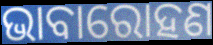
ଭାବାରୋହଣ